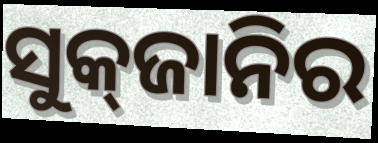
ସୁକ୍‌ଜାନିର